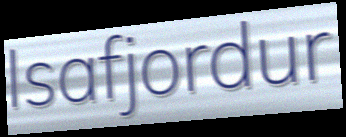
Isafjordur